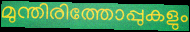
മുന്തിരിത്തോപ്പുകളും